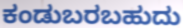
ಕಂಡುಬರಬಹುದು